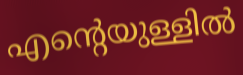
എന്റെയുള്ളിൽ